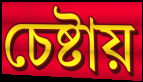
চেষ্টায়